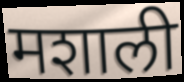
मशाली